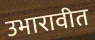
उभारावीत